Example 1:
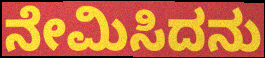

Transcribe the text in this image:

ನೇಮಿಸಿದನು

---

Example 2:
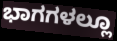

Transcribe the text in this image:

ಭಾಗಗಳಲ್ಲೂ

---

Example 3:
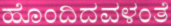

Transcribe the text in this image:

ಹೊಂದಿದವಳಂತೆ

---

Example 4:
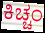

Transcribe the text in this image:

ಕಿಚ್ಚಂ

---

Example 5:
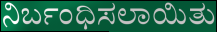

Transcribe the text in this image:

ನಿರ್ಬಂಧಿಸಲಾಯಿತು